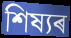
শিষ্যৰ